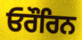
ਓਰੌਰਿਨ